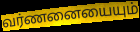
வர்ணனையையும்